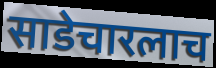
साडेचारलाच